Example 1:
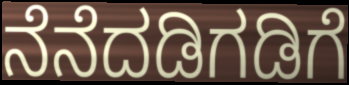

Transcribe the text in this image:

ನೆನೆದಡಿಗಡಿಗೆ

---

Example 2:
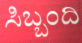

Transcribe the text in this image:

ಸಿಬ್ಬಂದಿ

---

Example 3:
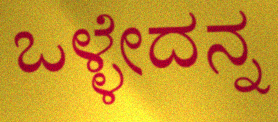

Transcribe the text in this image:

ಒಳ್ಳೇದನ್ನ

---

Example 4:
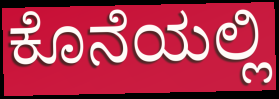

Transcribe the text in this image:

ಕೊನೆಯಲ್ಲಿ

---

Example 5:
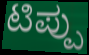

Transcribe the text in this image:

ಟಿಪ್ಪು